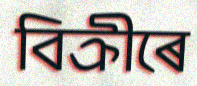
বিক্ৰীৰে